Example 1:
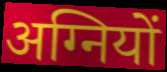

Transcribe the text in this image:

अग्नियों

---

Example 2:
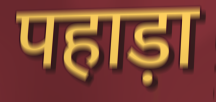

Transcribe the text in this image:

पहाड़ा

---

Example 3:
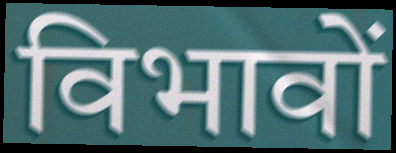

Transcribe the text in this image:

विभावों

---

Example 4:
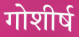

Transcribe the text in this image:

गोशीर्ष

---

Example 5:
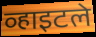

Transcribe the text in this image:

व्हाइटले